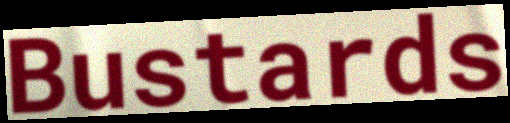
Bustards